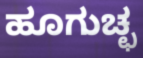
ಹೂಗುಚ್ಛ